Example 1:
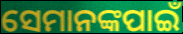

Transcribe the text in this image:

ସେମାନଙ୍କପାଇଁ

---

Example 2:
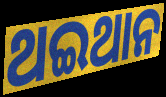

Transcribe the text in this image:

ଥଇଥାନ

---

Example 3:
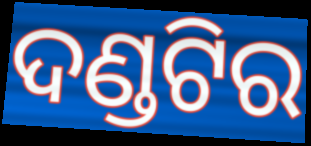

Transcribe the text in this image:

ଦଣ୍ଡଟିର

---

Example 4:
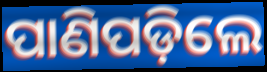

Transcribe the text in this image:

ପାଣିପଡ଼ିଲେ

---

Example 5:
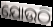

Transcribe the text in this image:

ଯୋଉଠି